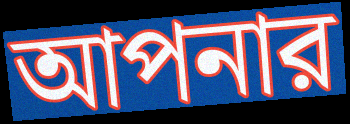
আপনার